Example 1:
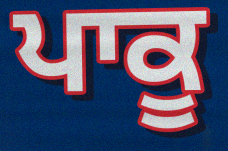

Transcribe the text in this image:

ਪਾਕੂ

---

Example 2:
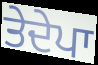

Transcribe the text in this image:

ਤੇਦੇਪਾ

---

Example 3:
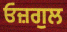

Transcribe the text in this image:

ਓਜ਼ਗੁਲ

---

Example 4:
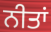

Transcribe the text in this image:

ਨੀਤਾਂ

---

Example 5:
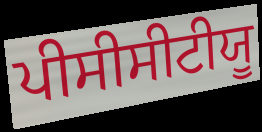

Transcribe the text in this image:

ਪੀਸੀਸੀਟੀਯੂ